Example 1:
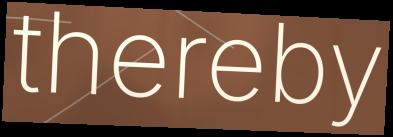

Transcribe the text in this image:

thereby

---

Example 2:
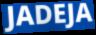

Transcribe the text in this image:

JADEJA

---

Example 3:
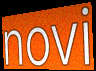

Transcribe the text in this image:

novi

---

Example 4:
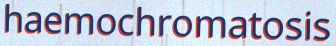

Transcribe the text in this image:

haemochromatosis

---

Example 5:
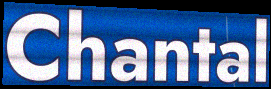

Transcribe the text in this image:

Chantal